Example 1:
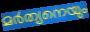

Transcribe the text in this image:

മർത്യനെയും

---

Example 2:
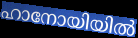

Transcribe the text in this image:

ഹാനോയിയിൽ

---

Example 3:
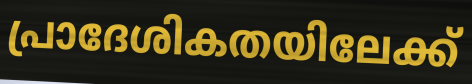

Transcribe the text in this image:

പ്രാദേശികതയിലേക്ക്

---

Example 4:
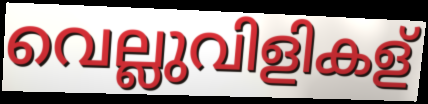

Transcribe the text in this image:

വെല്ലുവിളികള്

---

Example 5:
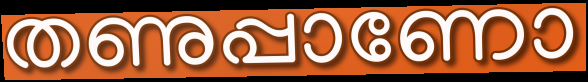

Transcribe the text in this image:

തണുപ്പാണോ